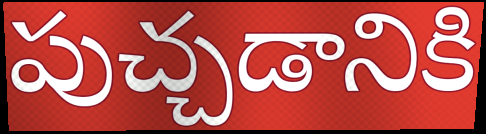
పుచ్చడానికి